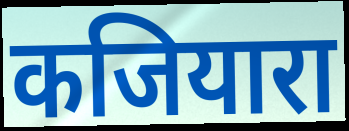
कजियारा